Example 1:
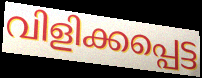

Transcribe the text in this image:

വിളിക്കപ്പെട്ട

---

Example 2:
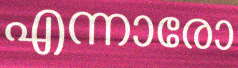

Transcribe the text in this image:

എന്നാരോ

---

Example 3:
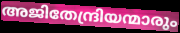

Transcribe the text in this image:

അജിതേന്ദ്രിയന്മാരും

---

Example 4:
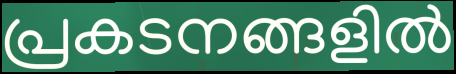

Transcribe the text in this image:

പ്രകടനങ്ങളിൽ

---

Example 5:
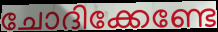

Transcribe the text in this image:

ചോദിക്കേണ്ടേ